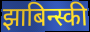
झाबिन्स्की